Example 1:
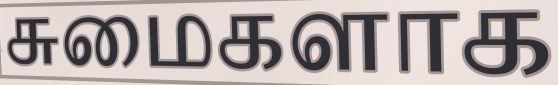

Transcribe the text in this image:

சுமைகளாக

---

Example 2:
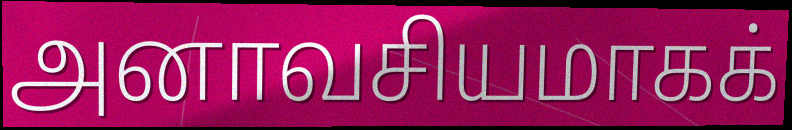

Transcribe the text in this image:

அனாவசியமாகக்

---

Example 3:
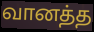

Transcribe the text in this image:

வானத்த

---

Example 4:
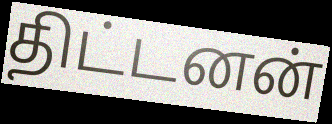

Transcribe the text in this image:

திட்டனன்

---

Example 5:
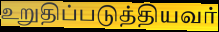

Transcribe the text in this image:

உறுதிப்படுத்தியவர்